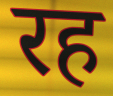
रह